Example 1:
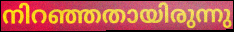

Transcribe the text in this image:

നിറഞ്ഞതായിരുന്നു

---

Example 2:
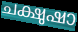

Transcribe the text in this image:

ചക്ഷുഷാ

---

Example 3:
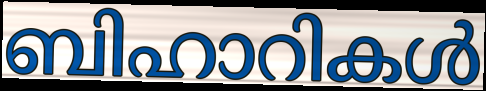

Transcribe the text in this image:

ബിഹാറികൾ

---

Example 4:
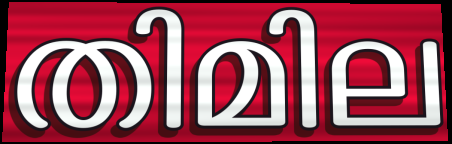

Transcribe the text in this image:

തിമില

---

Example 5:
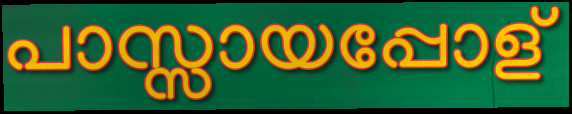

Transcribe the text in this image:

പാസ്സായപ്പോള്